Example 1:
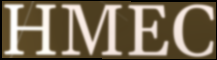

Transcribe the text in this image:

HMEC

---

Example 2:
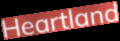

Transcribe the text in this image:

Heartland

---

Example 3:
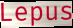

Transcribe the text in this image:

Lepus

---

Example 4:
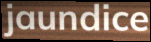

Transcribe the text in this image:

jaundice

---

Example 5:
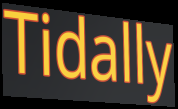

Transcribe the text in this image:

Tidally